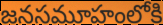
జనసమూహంలోకి